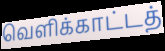
வெளிக்காட்டத்